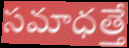
సమాధత్తే